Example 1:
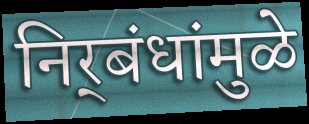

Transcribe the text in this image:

निर्बंधांमुळे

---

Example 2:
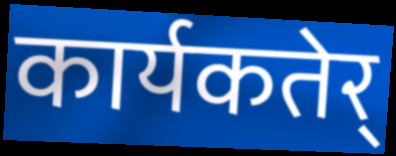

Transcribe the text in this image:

कार्यकतेर्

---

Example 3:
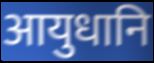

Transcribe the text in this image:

आयुधानि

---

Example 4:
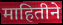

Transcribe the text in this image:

माहितीने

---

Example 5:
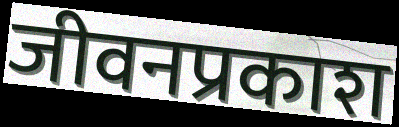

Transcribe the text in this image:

जीवनप्रकाश